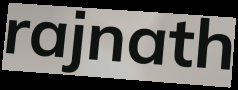
rajnath